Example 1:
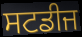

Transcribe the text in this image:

ਸਟਡੀਜ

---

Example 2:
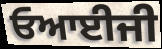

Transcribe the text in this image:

ਓਆਈਜੀ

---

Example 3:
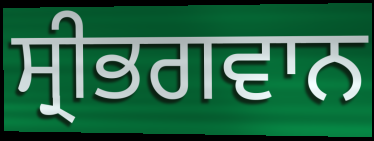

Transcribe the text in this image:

ਸ੍ਰੀਭਗਵਾਨ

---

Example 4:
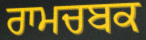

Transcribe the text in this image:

ਰਾਮਚਬਕ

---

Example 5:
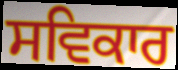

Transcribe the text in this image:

ਸਵਿਕਾਰ